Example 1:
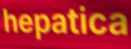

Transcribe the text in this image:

hepatica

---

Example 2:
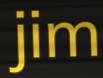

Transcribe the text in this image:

jim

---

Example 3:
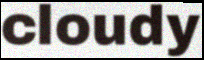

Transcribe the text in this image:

cloudy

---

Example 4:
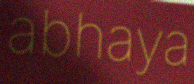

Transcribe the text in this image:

abhaya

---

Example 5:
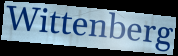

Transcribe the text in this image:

Wittenberg